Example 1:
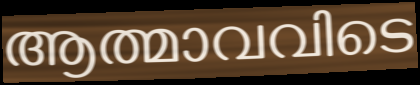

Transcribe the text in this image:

ആത്മാവവിടെ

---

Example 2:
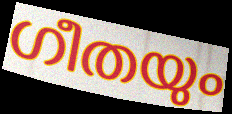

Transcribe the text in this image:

ഗീതയും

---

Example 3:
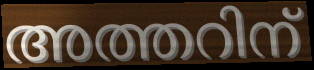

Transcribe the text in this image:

അത്തറിന്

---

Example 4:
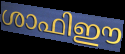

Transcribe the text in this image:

ശാഫിഈ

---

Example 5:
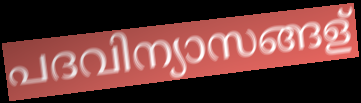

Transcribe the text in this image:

പദവിന്യാസങ്ങള്